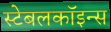
स्टेबलकॉइन्स